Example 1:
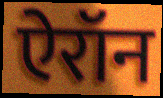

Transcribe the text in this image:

ऐरॉन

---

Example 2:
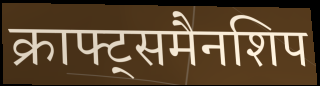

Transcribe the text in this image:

क्राफ्ट्समैनशिप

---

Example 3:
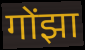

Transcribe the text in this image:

गोंझा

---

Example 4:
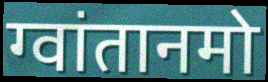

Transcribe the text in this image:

ग्वांतानमो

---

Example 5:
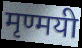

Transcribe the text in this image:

मृण्मयी